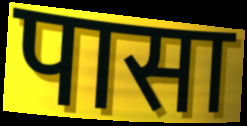
पासा